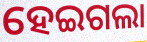
ହେଇଗଲା